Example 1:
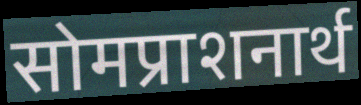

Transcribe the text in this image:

सोमप्राशनार्थ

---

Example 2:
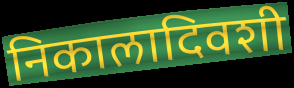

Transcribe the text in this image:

निकालादिवशी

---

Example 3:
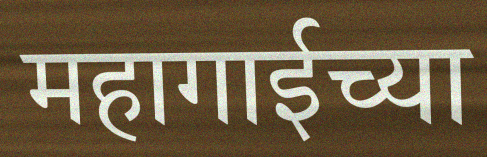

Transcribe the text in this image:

महागाईच्या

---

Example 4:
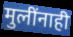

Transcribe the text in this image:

मुलींनाही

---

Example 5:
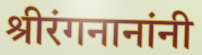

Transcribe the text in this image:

श्रीरंगनानांनी